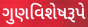
ગુણવિશેષરૂપે